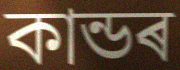
কান্ডৰ